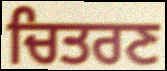
ਚਿਤਰਣ